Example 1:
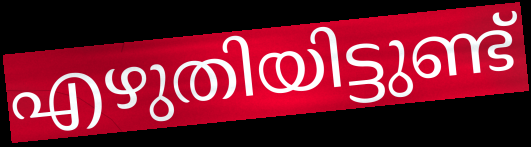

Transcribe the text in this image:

എഴുതിയിട്ടുണ്ട്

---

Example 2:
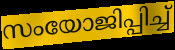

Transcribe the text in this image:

സംയോജിപ്പിച്ച്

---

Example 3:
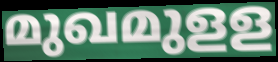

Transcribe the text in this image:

മുഖമുളള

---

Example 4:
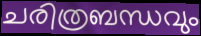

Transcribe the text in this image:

ചരിത്രബന്ധവും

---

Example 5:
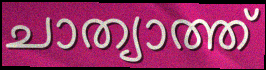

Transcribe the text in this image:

ചാത്യാത്ത്